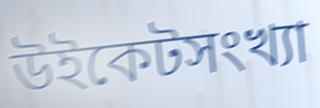
উইকেটসংখ্যা